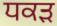
ਧਕੜ